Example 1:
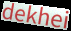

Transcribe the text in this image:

dekhei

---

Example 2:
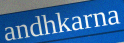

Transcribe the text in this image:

andhkarna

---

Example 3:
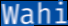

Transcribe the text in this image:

Wahi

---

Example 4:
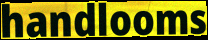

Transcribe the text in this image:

handlooms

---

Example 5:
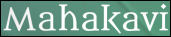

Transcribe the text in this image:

Mahakavi